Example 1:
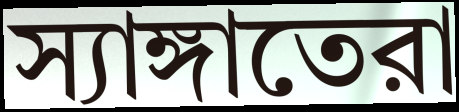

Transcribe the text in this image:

স্যাঙ্গাতেরা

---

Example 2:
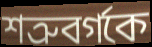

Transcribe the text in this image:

শত্রুবর্গকে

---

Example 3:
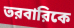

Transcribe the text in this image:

তরবারিকে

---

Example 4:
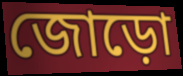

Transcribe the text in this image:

জোড়ো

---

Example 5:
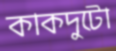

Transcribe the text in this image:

কাকদুটো